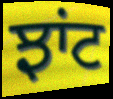
ਝਾਂਟ